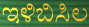
ಇಳಿಬಿಸಿಲ